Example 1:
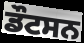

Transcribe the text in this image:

ਡੌਟਸਨ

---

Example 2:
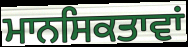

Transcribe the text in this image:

ਮਾਨਸਿਕਤਾਵਾਂ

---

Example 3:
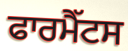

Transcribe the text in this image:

ਫਾਰਮੈੱਟਸ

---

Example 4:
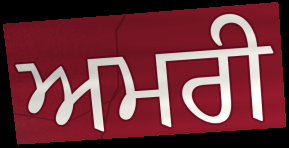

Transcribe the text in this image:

ਅਮਰੀ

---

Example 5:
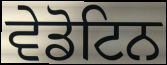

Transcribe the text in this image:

ਵੇਡੋਟਿਨ